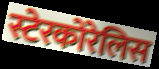
स्टेरकोरेलिस